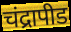
चंद्रापीड